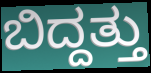
ಬಿದ್ದತ್ತು